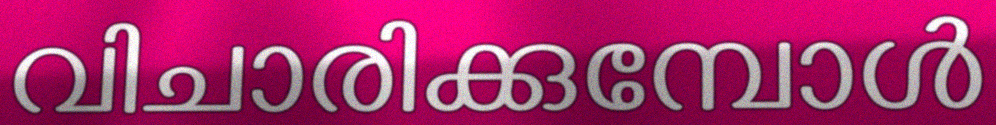
വിചാരിക്കുമ്പോൾ